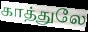
காத்துலே